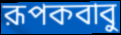
রূপকবাবু